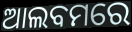
ଆଲବମରେ